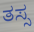
ತಸ್ಸ